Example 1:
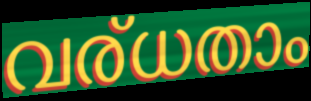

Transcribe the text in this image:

വര്ധതാം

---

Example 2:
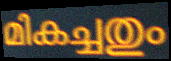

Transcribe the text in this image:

മികച്ചതും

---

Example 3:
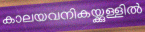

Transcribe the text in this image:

കാലയവനികയ്ക്കുള്ളിൽ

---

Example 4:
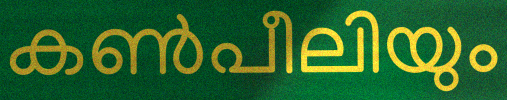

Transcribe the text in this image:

കൺപീലിയും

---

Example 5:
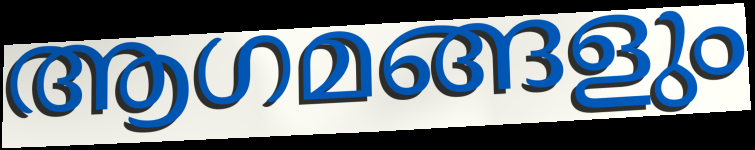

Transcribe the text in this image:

ആഗമങ്ങളും